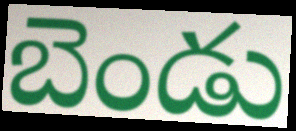
బెండు